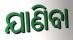
ଯାଣିବା